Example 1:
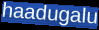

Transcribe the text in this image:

haadugalu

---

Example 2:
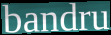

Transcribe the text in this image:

bandru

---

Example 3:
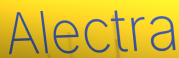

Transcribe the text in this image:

Alectra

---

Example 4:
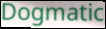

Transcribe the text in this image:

Dogmatic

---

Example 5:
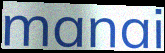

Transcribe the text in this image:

manai